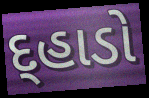
દ્હાડો